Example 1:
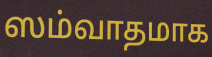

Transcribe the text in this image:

ஸம்வாதமாக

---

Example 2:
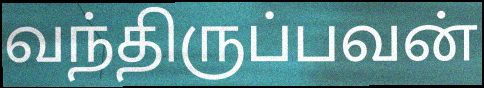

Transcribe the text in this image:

வந்திருப்பவன்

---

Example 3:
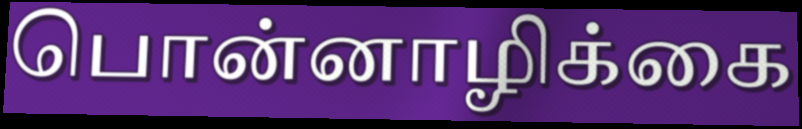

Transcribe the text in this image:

பொன்னாழிக்கை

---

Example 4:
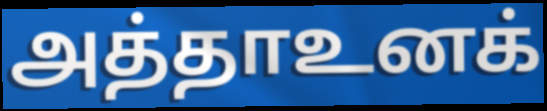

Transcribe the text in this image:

அத்தாஉனக்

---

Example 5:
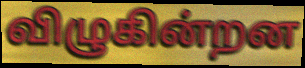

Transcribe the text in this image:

விழுகின்றன